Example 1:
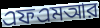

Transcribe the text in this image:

এফএমআর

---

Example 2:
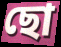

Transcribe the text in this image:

ছো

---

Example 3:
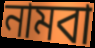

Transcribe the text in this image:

নামবা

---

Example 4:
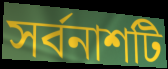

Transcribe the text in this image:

সর্বনাশটি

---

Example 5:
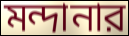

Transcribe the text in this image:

মন্দানার